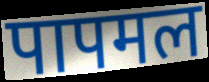
पापमल